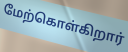
மேற்கொள்கிறார்